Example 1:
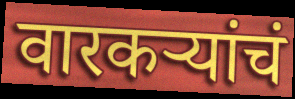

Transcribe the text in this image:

वारकऱ्यांचं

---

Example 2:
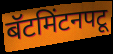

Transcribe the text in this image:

बॅटमिंटनपटू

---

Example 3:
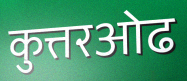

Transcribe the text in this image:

कुत्तरओढ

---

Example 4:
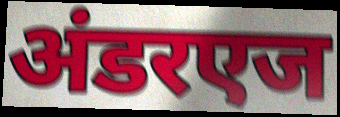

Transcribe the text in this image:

अंडरएज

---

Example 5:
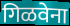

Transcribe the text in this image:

गिळवेना